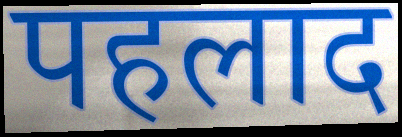
पहलाद